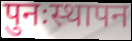
पुनःस्थापन